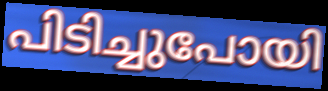
പിടിച്ചുപോയി